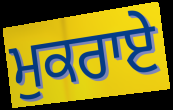
ਮੁਕਰਾਏ